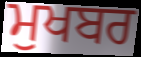
ਮੁਖਬਰ